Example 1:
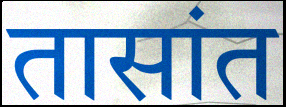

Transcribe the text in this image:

तासांत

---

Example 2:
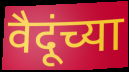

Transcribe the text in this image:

वैदूंच्या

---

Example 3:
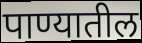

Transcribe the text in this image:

पाण्यातील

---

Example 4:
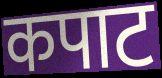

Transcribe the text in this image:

कपाट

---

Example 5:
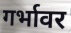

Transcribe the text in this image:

गर्भावर